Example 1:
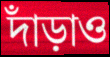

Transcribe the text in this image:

দাঁড়াও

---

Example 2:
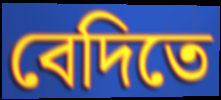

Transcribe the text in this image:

বেদিতে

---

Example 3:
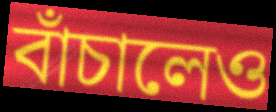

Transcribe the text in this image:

বাঁচালেও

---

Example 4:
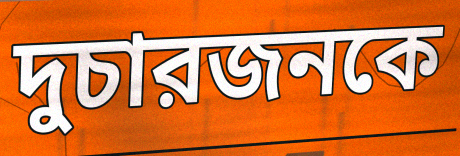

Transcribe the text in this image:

দুচারজনকে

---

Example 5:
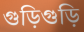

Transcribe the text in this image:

গুড়িগুড়ি